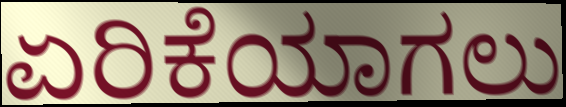
ಏರಿಕೆಯಾಗಲು